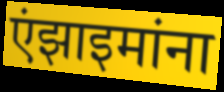
एंझाइमांना